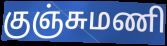
குஞ்சுமணி